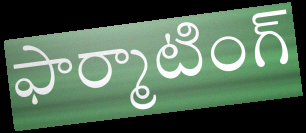
ఫార్మాటింగ్